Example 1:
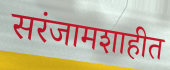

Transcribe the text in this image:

सरंजामशाहीत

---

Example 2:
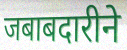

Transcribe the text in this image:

जबाबदारीने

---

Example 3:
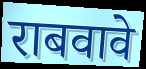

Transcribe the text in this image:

राबवावे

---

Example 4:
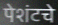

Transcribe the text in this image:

पेशंटचे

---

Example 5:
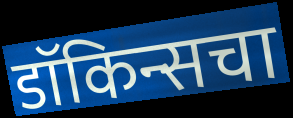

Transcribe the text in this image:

डॉकिन्सचा